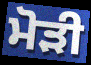
ਮੋੜੀ